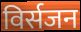
विर्सजन